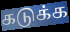
கடுக்க